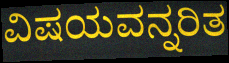
ವಿಷಯವನ್ನರಿತ